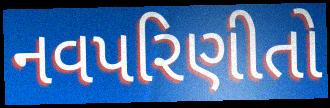
નવપરિણીતો